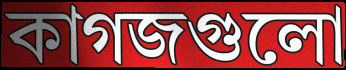
কাগজগুলো